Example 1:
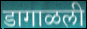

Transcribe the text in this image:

डागाळली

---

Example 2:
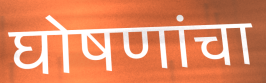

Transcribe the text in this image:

घोषणांचा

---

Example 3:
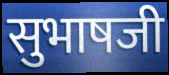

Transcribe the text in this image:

सुभाषजी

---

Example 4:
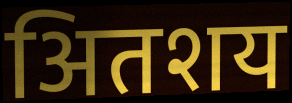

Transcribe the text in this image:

अितशय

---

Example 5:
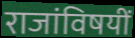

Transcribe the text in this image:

राजांविषयीं